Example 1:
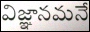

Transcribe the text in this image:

విజ్ఞానమనే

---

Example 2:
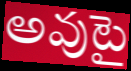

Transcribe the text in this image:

అవుటై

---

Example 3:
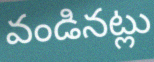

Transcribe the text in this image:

వండినట్లు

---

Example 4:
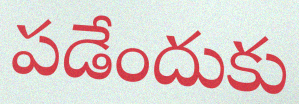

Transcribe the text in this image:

పడేందుకు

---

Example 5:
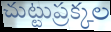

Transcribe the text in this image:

చుట్టుప్రక్కల